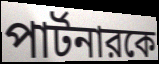
পার্টনারকে